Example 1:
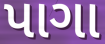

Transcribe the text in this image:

પાગા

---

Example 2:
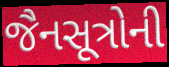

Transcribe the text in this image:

જૈનસૂત્રોની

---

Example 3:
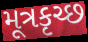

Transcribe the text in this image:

મૂત્રકૃચ્છ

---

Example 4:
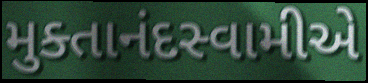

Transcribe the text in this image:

મુક્તાનંદસ્વામીએ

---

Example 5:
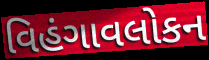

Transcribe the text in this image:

વિહંગાવલોકન